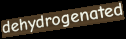
dehydrogenated